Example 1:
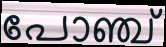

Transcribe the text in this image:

പോഞ്ച്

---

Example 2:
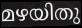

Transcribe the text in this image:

മഴയിതു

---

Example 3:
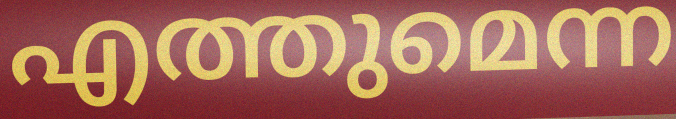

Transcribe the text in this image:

എത്തുമെന്ന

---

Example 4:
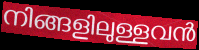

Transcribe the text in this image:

നിങ്ങളിലുള്ളവൻ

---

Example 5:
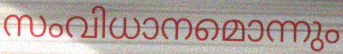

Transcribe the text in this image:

സംവിധാനമൊന്നും